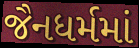
જૈનધર્મમાં